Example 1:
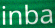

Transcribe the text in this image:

inba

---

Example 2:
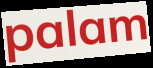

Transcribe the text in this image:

palam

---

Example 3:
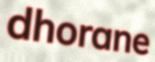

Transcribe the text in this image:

dhorane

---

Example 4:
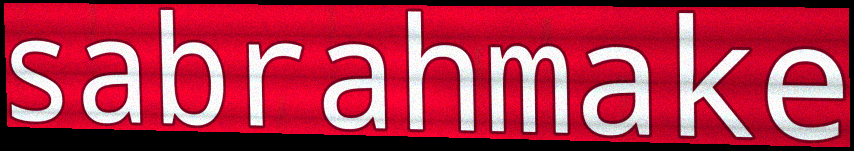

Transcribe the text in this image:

sabrahmake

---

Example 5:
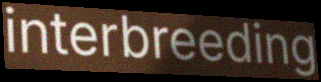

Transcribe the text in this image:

interbreeding